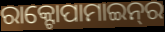
ରାକ୍ଟୋପାମାଇନ୍‌ର